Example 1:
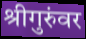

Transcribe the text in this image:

श्रीगुरुंवर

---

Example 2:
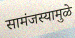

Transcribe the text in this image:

सामंजस्यामुळे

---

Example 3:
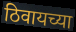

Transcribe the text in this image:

ठिवायच्या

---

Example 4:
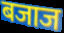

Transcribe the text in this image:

बजाज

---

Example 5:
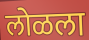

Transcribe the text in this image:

लोळला